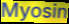
Myosin